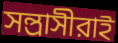
সন্ত্রাসীরাই